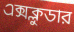
এক্সক্লুডার